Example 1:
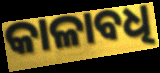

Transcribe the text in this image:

କାଳାବଧି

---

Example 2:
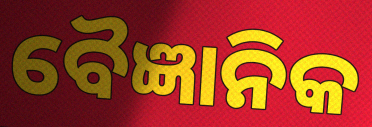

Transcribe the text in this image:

ବୈଜ୍ଞାନିକ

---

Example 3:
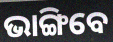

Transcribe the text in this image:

ଭାଙ୍ଗିବେ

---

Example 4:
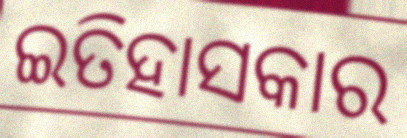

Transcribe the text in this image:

ଇତିହାସକାର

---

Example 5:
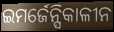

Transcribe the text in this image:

ଇମର୍ଜେନ୍ସିକାଳୀନ